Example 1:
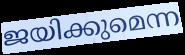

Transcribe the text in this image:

ജയിക്കുമെന്ന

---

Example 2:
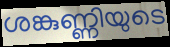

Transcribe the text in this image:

ശങ്കുണ്ണിയുടെ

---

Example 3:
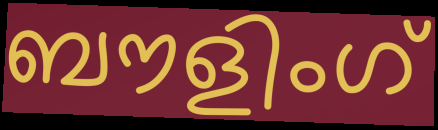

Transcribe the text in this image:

ബൗളിംഗ്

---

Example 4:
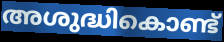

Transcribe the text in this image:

അശുദ്ധികൊണ്ട്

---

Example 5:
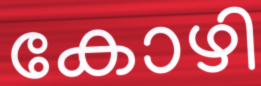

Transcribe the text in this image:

കോഴി